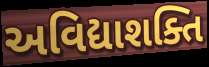
અવિદ્યાશક્તિ